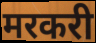
मरकरी